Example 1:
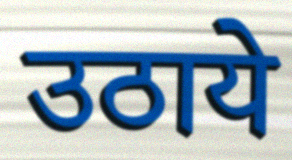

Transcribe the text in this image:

उठाये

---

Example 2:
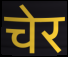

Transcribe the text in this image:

चेर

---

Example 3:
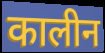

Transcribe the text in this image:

कालीन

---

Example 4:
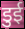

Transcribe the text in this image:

डुई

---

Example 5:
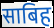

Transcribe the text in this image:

साबिह